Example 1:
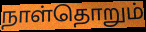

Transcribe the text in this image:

நாள்தொறும்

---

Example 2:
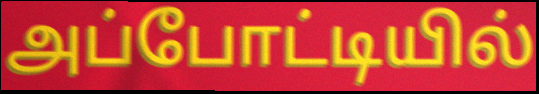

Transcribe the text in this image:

அப்போட்டியில்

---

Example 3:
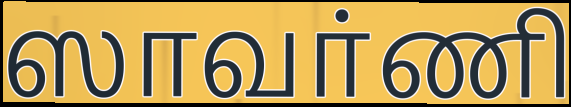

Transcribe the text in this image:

ஸாவர்ணி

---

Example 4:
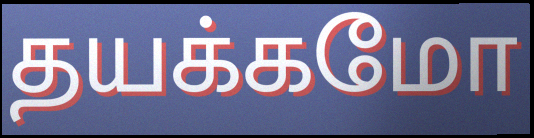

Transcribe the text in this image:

தயக்கமோ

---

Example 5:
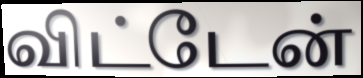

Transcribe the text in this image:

விட்டேன்